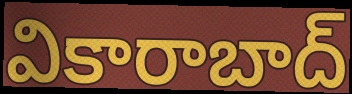
వికారాబాద్